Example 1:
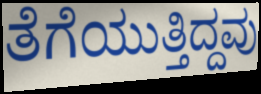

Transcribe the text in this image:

ತೆಗೆಯುತ್ತಿದ್ದವು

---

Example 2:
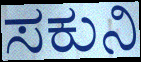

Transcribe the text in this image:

ಸಕುನಿ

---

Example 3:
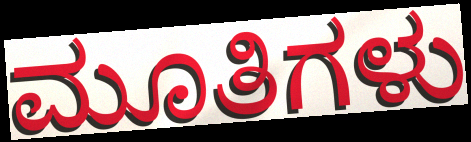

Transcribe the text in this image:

ಮೂತಿಗಳು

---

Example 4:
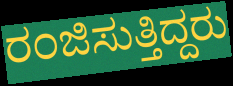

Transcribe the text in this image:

ರಂಜಿಸುತ್ತಿದ್ದರು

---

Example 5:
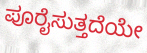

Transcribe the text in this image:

ಪೂರೈಸುತ್ತದೆಯೇ